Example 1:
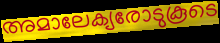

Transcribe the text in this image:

അമാലേക്യരോടുകൂടെ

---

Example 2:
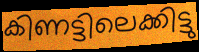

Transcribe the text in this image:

കിണട്ടിലെക്കിട്ടു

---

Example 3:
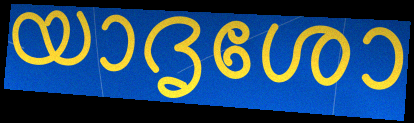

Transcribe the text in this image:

യാദൃശോ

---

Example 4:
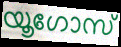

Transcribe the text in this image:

യൂഗോസ്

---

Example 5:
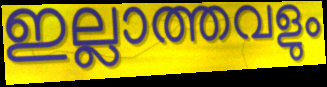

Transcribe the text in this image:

ഇല്ലാത്തവളും